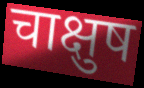
चाक्षुष